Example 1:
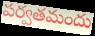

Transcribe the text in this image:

పర్వతమందు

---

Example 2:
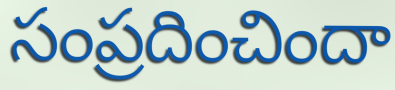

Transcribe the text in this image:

సంప్రదించిందా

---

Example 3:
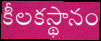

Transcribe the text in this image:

కీలకస్థానం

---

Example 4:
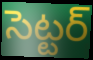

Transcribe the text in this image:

సెట్టర్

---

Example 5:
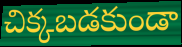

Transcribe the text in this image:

చిక్కబడకుండా